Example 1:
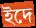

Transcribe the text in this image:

ইদে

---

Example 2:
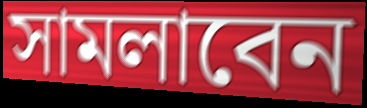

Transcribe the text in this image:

সামলাবেন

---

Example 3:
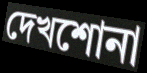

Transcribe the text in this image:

দেখশোনা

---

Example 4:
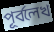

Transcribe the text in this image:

পূর্বলেখ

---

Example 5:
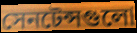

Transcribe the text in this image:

সেনটেন্সগুলো